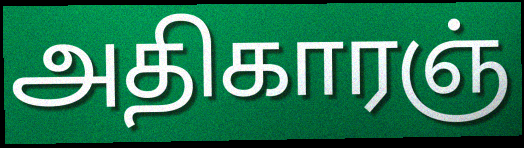
அதிகாரஞ்